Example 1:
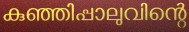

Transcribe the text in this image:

കുഞ്ഞിപ്പാലുവിന്റെ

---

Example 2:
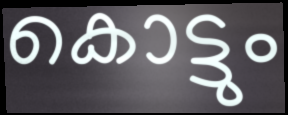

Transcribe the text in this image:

കൊട്ടും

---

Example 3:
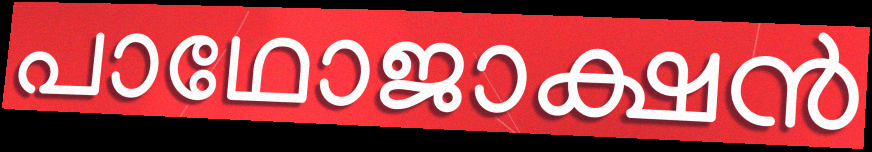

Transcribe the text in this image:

പാഥോജാക്ഷൻ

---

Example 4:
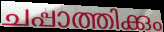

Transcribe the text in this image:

ചപ്പാത്തിക്കും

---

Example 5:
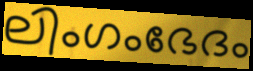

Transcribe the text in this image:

ലിംഗംഭേദം